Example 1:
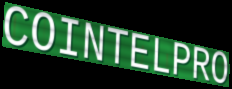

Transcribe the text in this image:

COINTELPRO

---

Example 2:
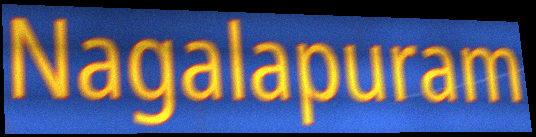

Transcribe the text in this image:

Nagalapuram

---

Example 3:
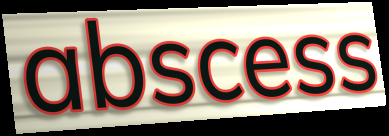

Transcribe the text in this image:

abscess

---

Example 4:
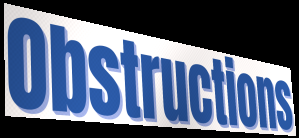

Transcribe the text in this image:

Obstructions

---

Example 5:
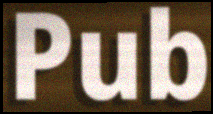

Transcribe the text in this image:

Pub